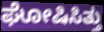
ಘೋಷಿಸಿತ್ತು